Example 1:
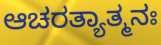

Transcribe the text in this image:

ಆಚರತ್ಯಾತ್ಮನಃ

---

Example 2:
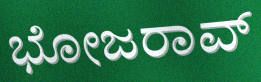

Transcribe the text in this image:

ಭೋಜರಾವ್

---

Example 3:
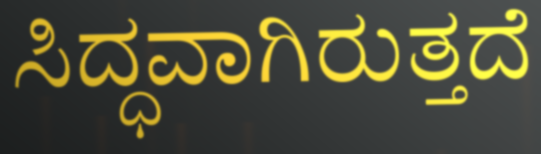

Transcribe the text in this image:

ಸಿದ್ಧವಾಗಿರುತ್ತದೆ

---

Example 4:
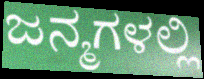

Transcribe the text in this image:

ಜನ್ಮಗಳಲ್ಲಿ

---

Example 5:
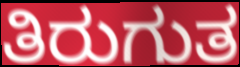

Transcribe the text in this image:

ತಿರುಗುತ